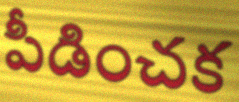
పీడించక